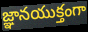
జ్ఞానయుక్తంగా